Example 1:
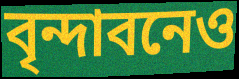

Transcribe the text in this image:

বৃন্দাবনেও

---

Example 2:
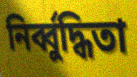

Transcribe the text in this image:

নির্ব্বুদ্ধিতা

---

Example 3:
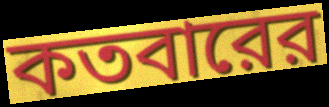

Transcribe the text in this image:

কতবারের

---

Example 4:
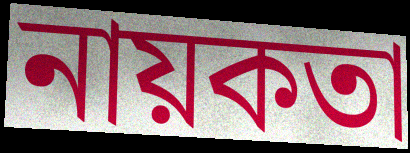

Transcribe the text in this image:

নায়কতা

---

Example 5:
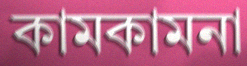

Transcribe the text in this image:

কামকামনা